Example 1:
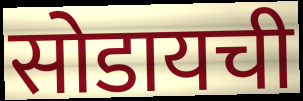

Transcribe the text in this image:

सोडायची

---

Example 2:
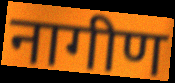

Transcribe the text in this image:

नागीण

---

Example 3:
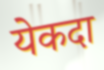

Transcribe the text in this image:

येकदा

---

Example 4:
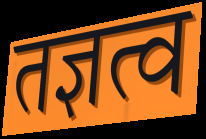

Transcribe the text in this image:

तज्ञत्व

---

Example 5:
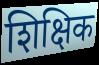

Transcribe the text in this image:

शिक्षिक